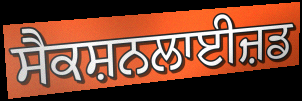
ਸੈਕਸ਼ਨਲਾਈਜ਼ਡ